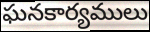
ఘనకార్యములు